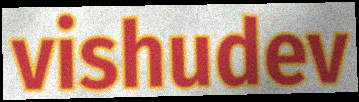
vishudev